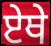
ਏਥੇ